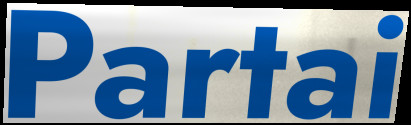
Partai